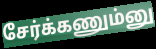
சேர்க்கணும்னு